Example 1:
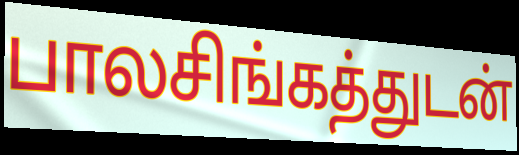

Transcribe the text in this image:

பாலசிங்கத்துடன்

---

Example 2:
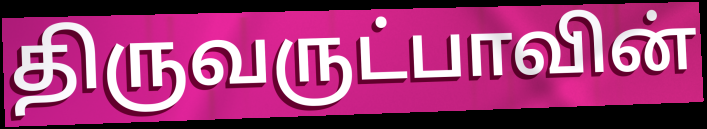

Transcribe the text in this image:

திருவருட்பாவின்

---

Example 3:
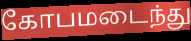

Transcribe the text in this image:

கோபமடைந்து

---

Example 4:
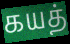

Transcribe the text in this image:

கயத்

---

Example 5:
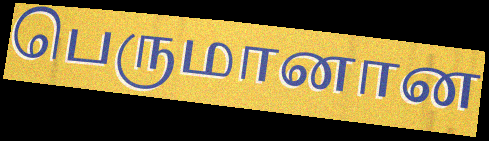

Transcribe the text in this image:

பெருமானான